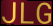
JLG